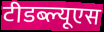
टीडब्ल्यूएस